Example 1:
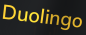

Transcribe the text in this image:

Duolingo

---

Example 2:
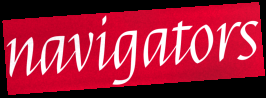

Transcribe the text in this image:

navigators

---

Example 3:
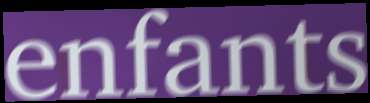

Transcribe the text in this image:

enfants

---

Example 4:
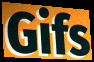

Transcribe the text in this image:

Gifs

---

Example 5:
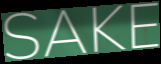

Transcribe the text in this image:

SAKE